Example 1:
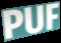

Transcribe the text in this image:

PUF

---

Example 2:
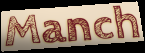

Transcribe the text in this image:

Manch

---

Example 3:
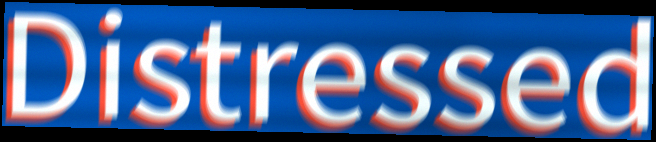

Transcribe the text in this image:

Distressed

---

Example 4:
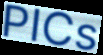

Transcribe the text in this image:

PICs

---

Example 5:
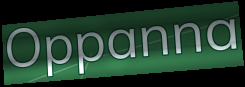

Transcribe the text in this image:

Oppanna